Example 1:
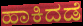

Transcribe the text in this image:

ಹಾಕಿದಡೆ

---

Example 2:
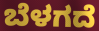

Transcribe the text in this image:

ಬೆಳಗದೆ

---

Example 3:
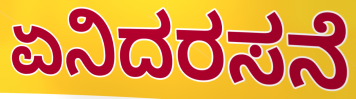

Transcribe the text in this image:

ಏನಿದರಸನೆ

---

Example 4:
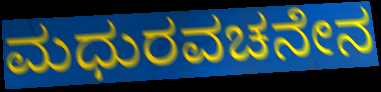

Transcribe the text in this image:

ಮಧುರವಚನೇನ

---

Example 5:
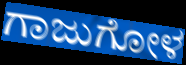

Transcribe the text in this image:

ಗಾಜುಗೋಳ